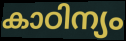
കാഠിന്യം